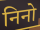
निनो